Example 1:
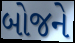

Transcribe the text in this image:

બોજને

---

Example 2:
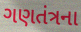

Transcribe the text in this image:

ગણતંત્રના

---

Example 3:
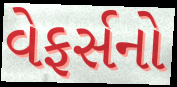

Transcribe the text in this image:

વેફર્સનો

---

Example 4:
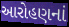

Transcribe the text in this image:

આરોહણનાં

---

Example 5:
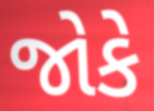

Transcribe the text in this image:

જોકે